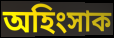
অহিংসাক